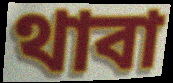
থাবা